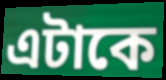
এটাকে